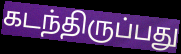
கடந்திருப்பது